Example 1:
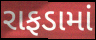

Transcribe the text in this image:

રાફડામાં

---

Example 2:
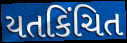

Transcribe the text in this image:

યતકિંચિત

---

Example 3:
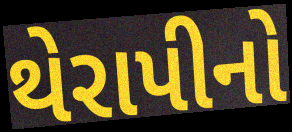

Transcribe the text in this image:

થેરાપીનો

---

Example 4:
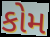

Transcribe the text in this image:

કોમ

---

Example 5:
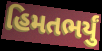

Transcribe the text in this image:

હિમતભર્યું